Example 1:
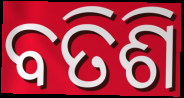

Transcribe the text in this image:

ବତିଶି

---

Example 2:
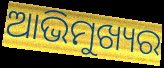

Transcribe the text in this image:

ଆଭିମୁଖ୍ୟର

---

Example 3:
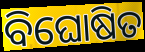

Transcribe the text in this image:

ବିଘୋଷିତ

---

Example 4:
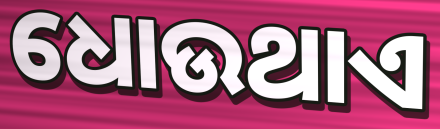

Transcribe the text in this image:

ଧୋଉଥାଏ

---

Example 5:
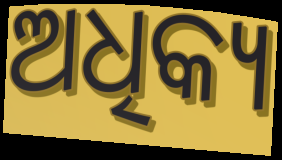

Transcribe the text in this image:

ଅଧିକ୍ୟ